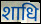
शाधि